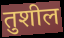
तुशील